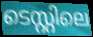
ടെസ്റ്റിലെ